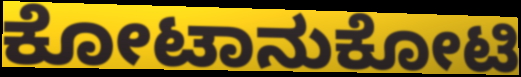
ಕೋಟಾನುಕೋಟಿ